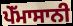
ਪੇੱਮਾਸਾਨੀ